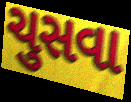
ચુસવા